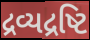
દ્રવ્યદ્રષ્ટિ